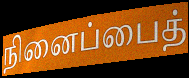
நினைப்பைத்